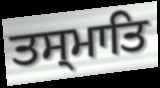
ਤਸ੍ਮਾਤਿ